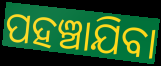
ପହଞ୍ଚାଯିବା